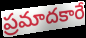
ప్రమాదకారే